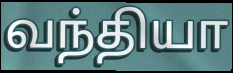
வந்தியா